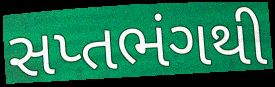
સપ્તભંગથી